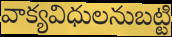
వాక్యవిధులనుబట్టి